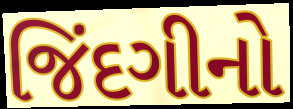
જિંદગીનો